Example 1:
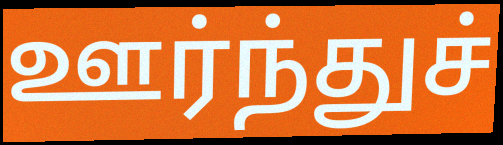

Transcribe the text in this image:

ஊர்ந்துச்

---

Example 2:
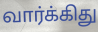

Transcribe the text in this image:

வார்க்கிது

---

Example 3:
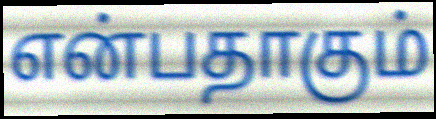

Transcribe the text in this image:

என்பதாகும்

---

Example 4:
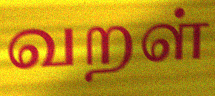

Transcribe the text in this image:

வறள்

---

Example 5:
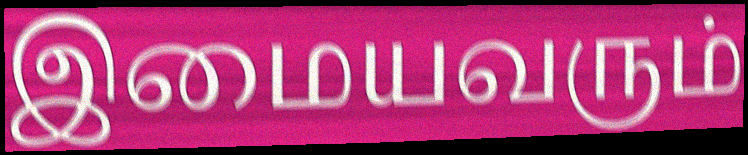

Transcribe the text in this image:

இமையவரும்